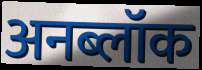
अनब्लॉक